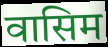
वासिम